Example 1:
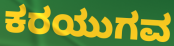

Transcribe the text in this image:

ಕರಯುಗವ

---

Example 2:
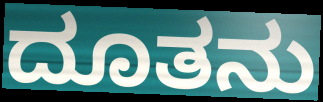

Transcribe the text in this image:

ದೂತನು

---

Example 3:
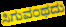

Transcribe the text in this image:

ಸಿಗುವಂಥದು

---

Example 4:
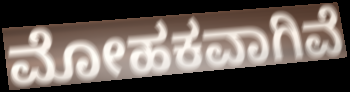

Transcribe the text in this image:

ಮೋಹಕವಾಗಿವೆ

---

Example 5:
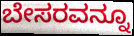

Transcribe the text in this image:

ಬೇಸರವನ್ನೂ